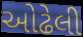
ઓઢેલી